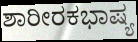
ಶಾರೀರಕಭಾಷ್ಯ